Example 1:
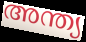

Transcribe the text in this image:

അന്ത്യ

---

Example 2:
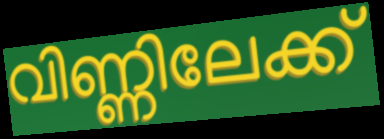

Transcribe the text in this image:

വിണ്ണിലേക്ക്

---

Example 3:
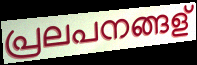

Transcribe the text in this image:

പ്രലപനങ്ങള്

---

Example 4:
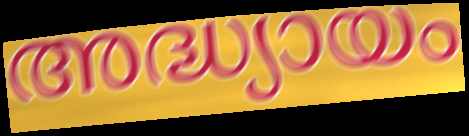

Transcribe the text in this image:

അദ്ധ്യായം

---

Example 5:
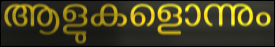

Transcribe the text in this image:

ആളുകളൊന്നും